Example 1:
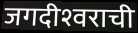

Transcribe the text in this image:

जगदीश्वराची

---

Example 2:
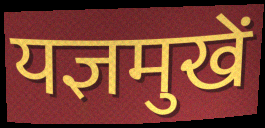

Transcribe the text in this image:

यज्ञमुखें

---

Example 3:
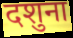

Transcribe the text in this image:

दशुना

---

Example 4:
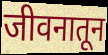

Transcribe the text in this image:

जीवनातून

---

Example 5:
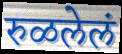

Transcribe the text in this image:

रुळलेलं